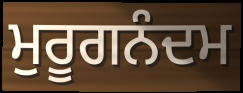
ਮੁਰੂਗਨੰਦਮ